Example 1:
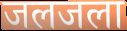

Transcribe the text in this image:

जलजला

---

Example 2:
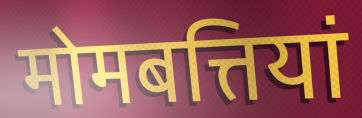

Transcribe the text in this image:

मोमबत्तियां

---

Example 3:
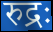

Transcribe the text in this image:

रुद्रः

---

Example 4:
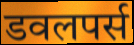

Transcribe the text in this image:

डवलपर्स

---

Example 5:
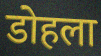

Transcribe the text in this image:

डोहला